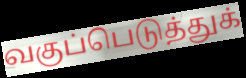
வகுப்பெடுத்துக்